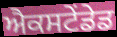
ਐਕਸਟੇਂਡੇਡ